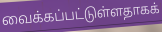
வைக்கப்பட்டுள்ளதாகக்